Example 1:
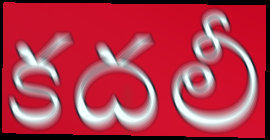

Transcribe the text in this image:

కదలీ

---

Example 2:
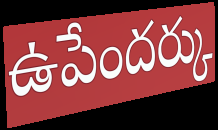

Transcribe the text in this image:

ఉపేందర్కు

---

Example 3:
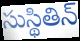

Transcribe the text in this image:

సుస్థితిన్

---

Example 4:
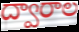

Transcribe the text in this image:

ద్వారాల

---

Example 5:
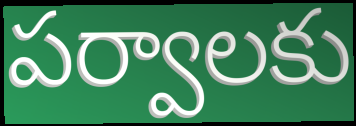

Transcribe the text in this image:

పర్వాలకు